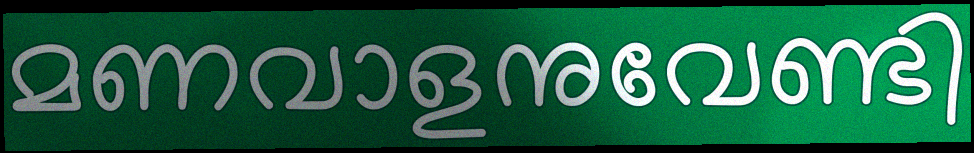
മണവാളനുവേണ്ടി